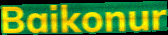
Baikonur